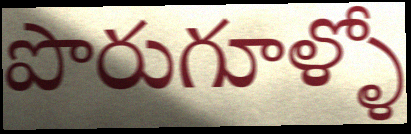
పొరుగూళ్ళో